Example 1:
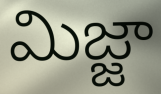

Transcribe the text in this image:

మిజ్జా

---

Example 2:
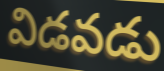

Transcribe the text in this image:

విడవడు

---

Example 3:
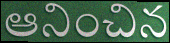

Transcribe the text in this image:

ఆనించిన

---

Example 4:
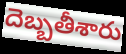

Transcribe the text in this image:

దెబ్బతీశారు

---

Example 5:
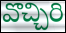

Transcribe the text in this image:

వొచ్చిరి